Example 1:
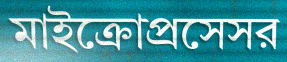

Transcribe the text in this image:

মাইক্রোপ্রসেসর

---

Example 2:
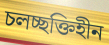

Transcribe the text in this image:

চলচ্ছক্তিহীন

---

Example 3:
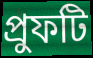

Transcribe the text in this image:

প্রুফটি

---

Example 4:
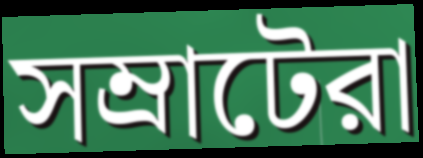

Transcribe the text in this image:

সম্রাটেরা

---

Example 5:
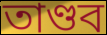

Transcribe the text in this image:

তাণ্ডব